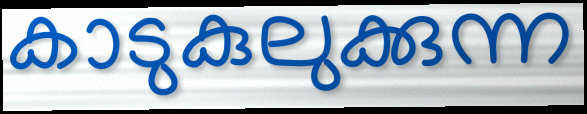
കാടുകുലുക്കുന്ന